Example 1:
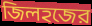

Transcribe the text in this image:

জিলহজের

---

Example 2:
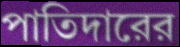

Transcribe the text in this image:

পাতিদারের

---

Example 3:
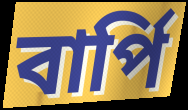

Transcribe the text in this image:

বার্পি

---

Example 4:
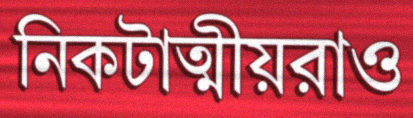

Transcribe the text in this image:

নিকটাত্মীয়রাও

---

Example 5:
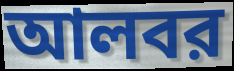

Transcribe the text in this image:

আলবর